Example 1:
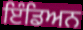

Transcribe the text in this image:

ਇੰਡਿਅਨ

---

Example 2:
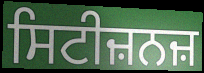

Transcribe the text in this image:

ਸਿਟੀਜ਼ਨਜ਼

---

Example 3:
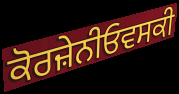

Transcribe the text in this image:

ਕੋਰਜ਼ੇਨੀਓਵਸਕੀ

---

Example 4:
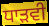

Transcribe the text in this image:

ਧਾੜਵੀ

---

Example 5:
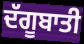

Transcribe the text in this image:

ਦੱਗੂਬਾਤੀ